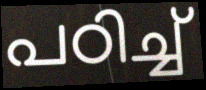
പഠിച്ച്